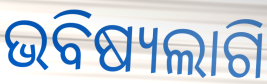
ଭବିଷ୍ୟଲାଗି